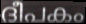
ദീപകം